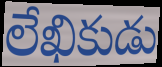
లేఖికుడు